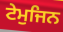
ਟੇਮੁਜਿਨ